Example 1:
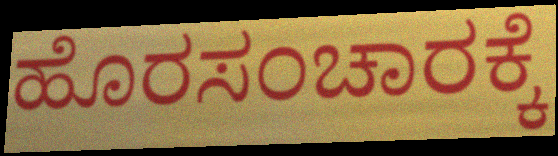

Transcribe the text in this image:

ಹೊರಸಂಚಾರಕ್ಕೆ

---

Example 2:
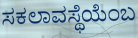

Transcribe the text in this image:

ಸಕಲಾವಸ್ಥೆಯೆಂಬ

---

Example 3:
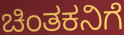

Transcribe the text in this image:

ಚಿಂತಕನಿಗೆ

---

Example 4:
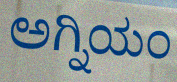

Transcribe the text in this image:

ಅಗ್ನಿಯಂ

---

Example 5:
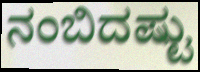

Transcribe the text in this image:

ನಂಬಿದಷ್ಟು